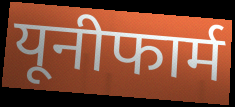
यूनीफार्म